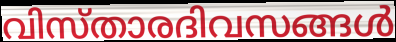
വിസ്താരദിവസങ്ങൾ